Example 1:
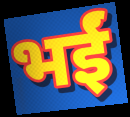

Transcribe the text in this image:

भईं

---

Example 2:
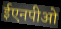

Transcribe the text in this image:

ईएनपीओ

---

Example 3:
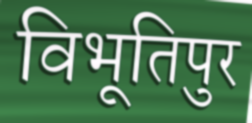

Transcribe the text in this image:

विभूतिपुर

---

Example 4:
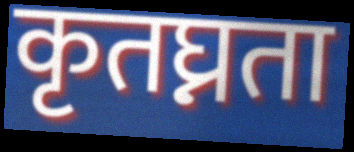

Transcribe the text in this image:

कृतघ्नता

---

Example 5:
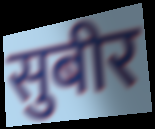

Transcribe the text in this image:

सुबीर